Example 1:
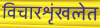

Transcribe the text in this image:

विचारशृंखलेत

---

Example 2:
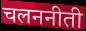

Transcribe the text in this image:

चलननीती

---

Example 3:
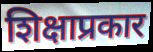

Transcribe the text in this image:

शिक्षाप्रकार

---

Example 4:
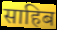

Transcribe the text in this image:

साहिब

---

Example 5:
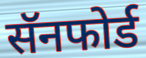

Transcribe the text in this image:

सॅनफोर्ड